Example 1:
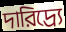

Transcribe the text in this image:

দারিদ্র্যে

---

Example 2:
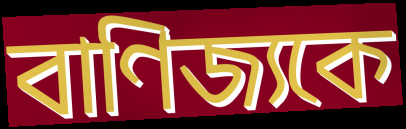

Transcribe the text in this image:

বাণিজ্যকে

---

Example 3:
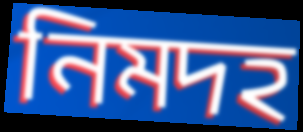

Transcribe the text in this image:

নিমদহ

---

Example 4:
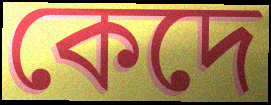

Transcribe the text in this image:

কেদে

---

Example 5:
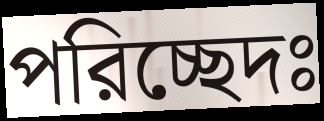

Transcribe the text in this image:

পরিচ্ছেদঃ